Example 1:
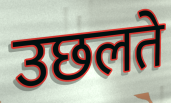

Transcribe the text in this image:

उछलते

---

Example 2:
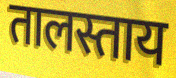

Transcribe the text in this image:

तालस्ताय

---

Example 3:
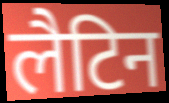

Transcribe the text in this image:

लैटिन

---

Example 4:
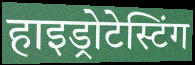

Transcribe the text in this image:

हाइड्रोटेस्टिंग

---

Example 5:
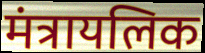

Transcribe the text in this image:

मंत्रायलिक